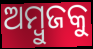
ଅମ୍ବୁଜକୁ